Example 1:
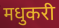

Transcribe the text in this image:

मधुकरी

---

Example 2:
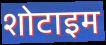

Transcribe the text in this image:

शोटाइम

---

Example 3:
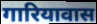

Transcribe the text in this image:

गारियावास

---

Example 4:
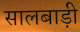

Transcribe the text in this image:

सालबाड़ी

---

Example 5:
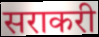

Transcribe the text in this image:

सराकरी